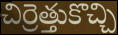
చిర్రెత్తుకొచ్చి